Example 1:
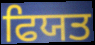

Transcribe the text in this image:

ਫਿਯਤ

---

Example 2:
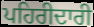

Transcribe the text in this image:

ਪਹਿਰੀਦਾਰੀ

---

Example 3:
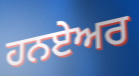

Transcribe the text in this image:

ਹਨਏਅਰ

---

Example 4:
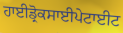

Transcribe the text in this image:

ਹਾਈਡ੍ਰੋਕਸਾਈਪੇਟਾਈਟ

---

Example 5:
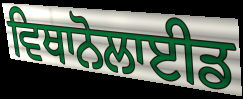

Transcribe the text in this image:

ਵਿਥਾਨੋਲਾਈਡ